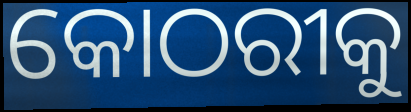
କୋଠରୀକୁ